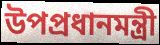
উপপ্রধানমন্ত্রী